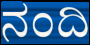
ನಂದಿ